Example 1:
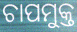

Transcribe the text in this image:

ଚାପମୁକ୍ତ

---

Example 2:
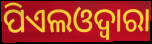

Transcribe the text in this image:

ପିଏଲଓଦ୍ୱାରା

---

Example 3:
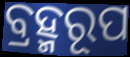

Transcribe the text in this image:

ବ୍ରହ୍ମରୂପ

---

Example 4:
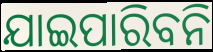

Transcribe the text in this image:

ଯାଇପାରିବନି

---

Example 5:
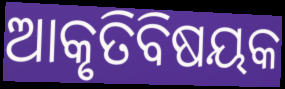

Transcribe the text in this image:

ଆକୃତିବିଷୟକ